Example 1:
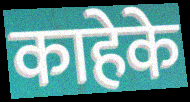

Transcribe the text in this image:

काहेके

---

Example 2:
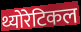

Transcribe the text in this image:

थ्योरेटिकल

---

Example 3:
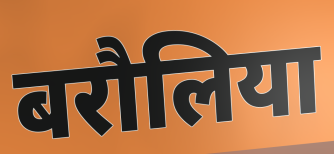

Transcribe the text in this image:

बरौलिया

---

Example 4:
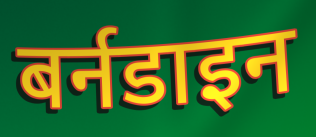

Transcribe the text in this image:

बर्नडाइन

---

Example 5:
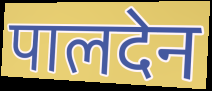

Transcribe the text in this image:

पालदेन